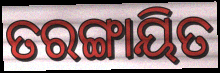
ତରଙ୍ଗାୟିତ